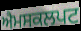
ਐਮਸਕਲਪਟ